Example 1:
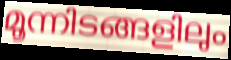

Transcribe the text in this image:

മൂന്നിടങ്ങളിലും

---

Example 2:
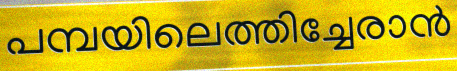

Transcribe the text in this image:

പമ്പയിലെത്തിച്ചേരാൻ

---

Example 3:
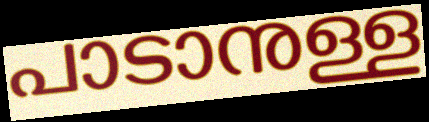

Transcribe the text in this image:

പാടാനുള്ള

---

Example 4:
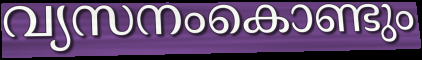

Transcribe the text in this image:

വ്യസനംകൊണ്ടും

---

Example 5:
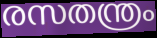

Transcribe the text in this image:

രസതന്ത്രം